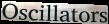
Oscillators